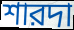
শারদা